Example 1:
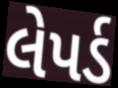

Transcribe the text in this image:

લેપર્ડ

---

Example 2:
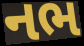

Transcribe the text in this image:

નભ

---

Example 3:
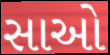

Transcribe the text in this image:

સાઓ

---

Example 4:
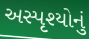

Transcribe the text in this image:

અસ્પૃશ્યોનું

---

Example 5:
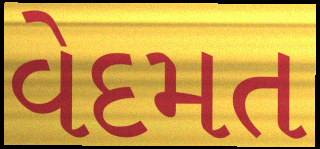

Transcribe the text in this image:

વેદમત